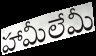
హామీలేమీ